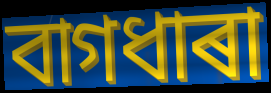
বাগধাৰা